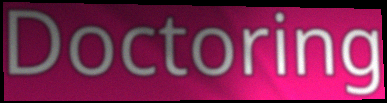
Doctoring